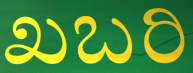
ಖಬರಿ